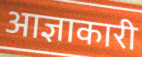
आज्ञाकारी